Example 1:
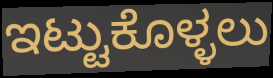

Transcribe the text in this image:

ಇಟ್ಟುಕೊಳ್ಳಲು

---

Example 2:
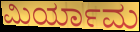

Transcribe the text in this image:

ಮಿರ್ಯಾಮ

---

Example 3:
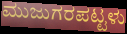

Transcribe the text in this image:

ಮುಜುಗರಪಟ್ಟಳು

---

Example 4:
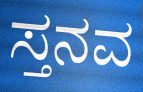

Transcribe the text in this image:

ಸ್ತನವ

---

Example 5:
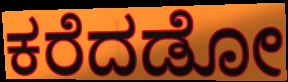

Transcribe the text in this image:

ಕರೆದಡೋ